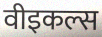
वीइकल्‍स